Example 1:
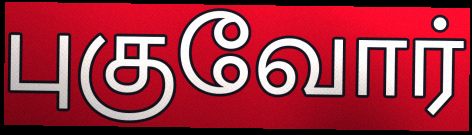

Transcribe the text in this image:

புகுவோர்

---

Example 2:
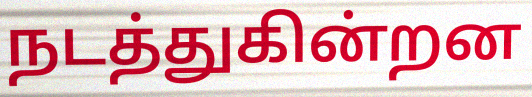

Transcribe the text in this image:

நடத்துகின்றன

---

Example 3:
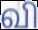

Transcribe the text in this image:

வி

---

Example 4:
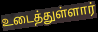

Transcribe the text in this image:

உடைத்துள்ளார்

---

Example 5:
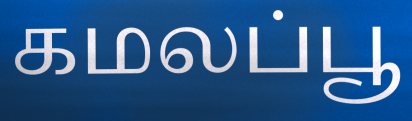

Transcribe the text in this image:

கமலப்பூ